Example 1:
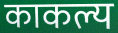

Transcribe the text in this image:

काकल्य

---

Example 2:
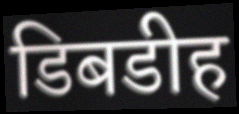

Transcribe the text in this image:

डिबडीह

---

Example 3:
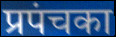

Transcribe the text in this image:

प्रपंचका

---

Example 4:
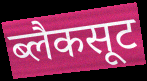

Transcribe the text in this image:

ब्लैकसूट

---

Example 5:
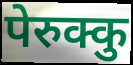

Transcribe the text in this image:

पेरुक्कु